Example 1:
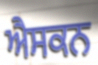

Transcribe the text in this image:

ਐਸਕਨ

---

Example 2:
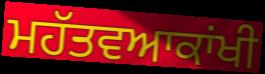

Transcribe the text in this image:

ਮਹੱਤਵਆਕਾਂਖੀ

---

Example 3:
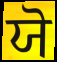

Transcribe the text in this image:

ਯੋ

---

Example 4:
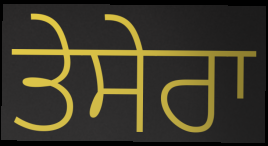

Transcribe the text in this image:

ਤੇਸੇਰਾ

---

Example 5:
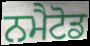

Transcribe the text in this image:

ਨਮੈਟੋਡ